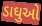
ડાઘુઓ